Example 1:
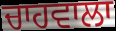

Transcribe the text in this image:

ਚਾਹਵਾਲਾ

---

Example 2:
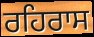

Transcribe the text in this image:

ਰਹਿਰਾਸ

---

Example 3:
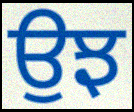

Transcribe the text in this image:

ਉਝ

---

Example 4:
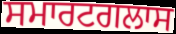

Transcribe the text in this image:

ਸਮਾਰਟਗਲਾਸ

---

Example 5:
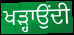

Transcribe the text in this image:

ਖੜ੍ਹਾਉਂਦੀ